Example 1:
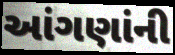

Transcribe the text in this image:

આંગણાંની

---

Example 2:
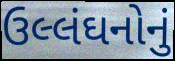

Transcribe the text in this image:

ઉલ્લંઘનોનું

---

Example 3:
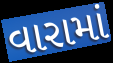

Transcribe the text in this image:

વારામાં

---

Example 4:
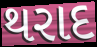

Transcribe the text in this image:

થરાદ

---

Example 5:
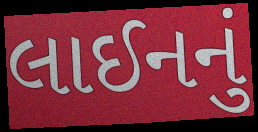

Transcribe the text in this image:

લાઈનનું